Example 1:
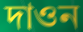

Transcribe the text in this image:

দাওন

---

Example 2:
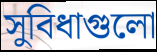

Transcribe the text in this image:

সুবিধাগুলো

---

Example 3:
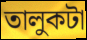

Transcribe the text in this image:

তালুকটা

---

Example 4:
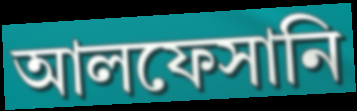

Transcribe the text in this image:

আলফেসানি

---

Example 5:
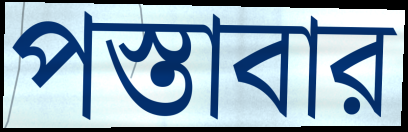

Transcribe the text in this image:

পস্তাবার